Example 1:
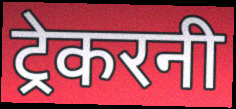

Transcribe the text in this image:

ट्रेकरनी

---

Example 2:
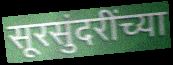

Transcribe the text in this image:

सूरसुंदरींच्या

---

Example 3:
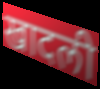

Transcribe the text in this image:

खादली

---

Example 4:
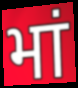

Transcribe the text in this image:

भां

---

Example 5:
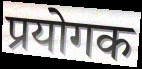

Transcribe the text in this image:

प्रयोगक